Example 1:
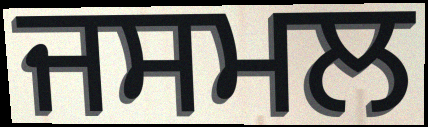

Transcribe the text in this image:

ਜਸਮਲ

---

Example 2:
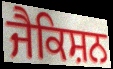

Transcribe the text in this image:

ਜੈਕਿਸ਼ਨ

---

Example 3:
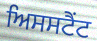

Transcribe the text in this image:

ਅਿਸਸਟੈਂਟ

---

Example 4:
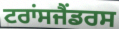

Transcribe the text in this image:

ਟਰਾਂਸਜੈਂਡਰਸ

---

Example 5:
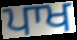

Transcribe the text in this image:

ਪਾਖ